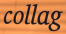
collag